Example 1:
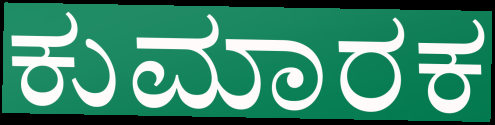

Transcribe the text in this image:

ಕುಮಾರಕ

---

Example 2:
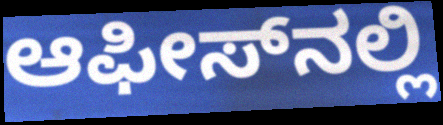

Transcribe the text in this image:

ಆಫೀಸ್‌ನಲ್ಲಿ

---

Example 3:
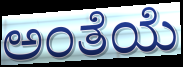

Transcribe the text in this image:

ಅಂತೆಯೆ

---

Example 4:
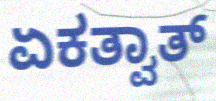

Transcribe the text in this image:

ಏಕತ್ವಾತ್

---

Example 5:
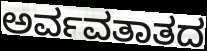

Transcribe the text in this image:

ಅರ್ವವತಾತದ